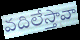
వదిలేస్తావా